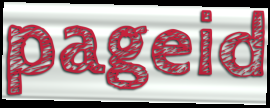
pageid